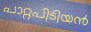
പാറ്റപിടിയൻ